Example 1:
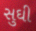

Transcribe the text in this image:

સુઘી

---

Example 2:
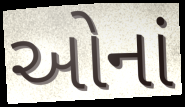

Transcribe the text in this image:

ઓનાં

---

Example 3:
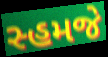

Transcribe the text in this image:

સ્હમજે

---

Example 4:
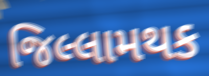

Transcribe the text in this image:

જિલ્લામથક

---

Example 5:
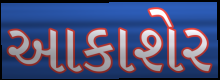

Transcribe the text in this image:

આકાશેર